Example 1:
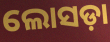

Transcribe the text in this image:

ଲୋସଡ଼ା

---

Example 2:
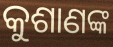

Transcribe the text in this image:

କୁଶାଣଙ୍କ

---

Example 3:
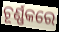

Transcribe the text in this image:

ଚୂର୍ଣ୍ଣକରେ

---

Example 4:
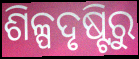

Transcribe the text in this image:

ଶିଳ୍ପଦୃଷ୍ଟିରୁ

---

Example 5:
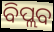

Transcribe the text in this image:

ବିପ୍ଲବ